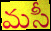
మసీ